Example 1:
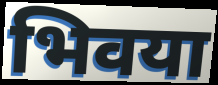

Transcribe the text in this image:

भिवया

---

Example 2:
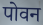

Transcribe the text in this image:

पोवन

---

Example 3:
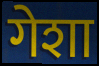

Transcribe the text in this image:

गेशा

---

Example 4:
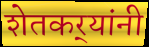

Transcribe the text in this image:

शेतकर्यांनी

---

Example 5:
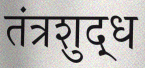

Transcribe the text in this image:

तंत्रशुद्ध